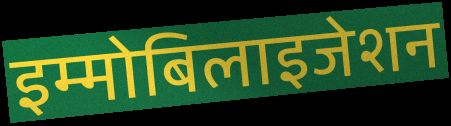
इम्मोबिलाइजेशन